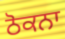
ਠੋਕਨਾ